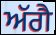
ਅੱਗੈ